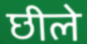
छीले